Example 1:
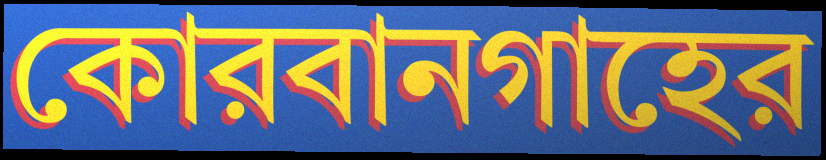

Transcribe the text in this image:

কোরবানগাহের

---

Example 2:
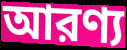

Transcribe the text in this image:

আরণ্য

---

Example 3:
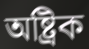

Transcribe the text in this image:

অষ্ট্রিক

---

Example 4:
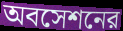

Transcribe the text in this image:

অবসেশনের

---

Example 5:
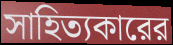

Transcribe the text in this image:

সাহিত্যকারের